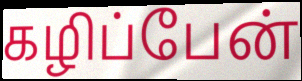
கழிப்பேன்